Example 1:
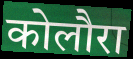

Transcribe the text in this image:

कोलौरा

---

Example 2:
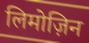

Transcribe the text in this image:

लिमोज़िन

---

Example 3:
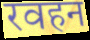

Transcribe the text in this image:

रवहन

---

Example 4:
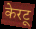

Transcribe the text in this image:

केरटू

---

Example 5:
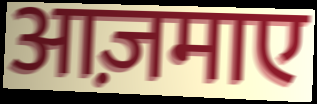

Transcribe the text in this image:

आज़माए